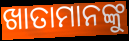
ଖାତାମାନଙ୍କୁ